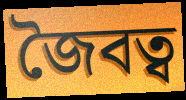
জৈবত্ব